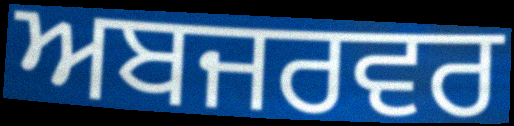
ਅਬਜਰਵਰ